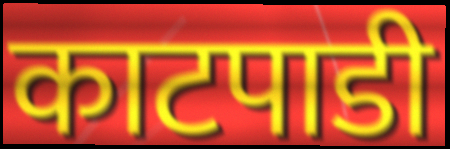
काटपाडी